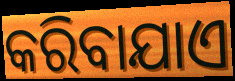
କରିବାଯାଏ